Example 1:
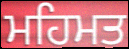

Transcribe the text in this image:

ਮਹਿਮਤ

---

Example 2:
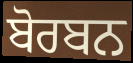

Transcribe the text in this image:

ਬੋਰਬਨ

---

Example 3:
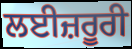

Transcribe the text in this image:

ਲਈਜ਼ਰੂਰੀ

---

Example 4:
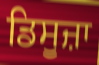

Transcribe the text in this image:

ਡਿਸੂਜ਼ਾ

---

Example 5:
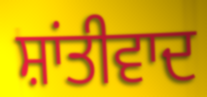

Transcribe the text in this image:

ਸ਼ਾਂਤੀਵਾਦ